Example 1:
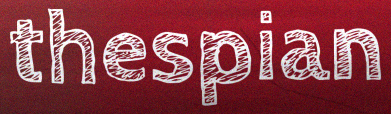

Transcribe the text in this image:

thespian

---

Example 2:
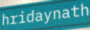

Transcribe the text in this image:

hridaynath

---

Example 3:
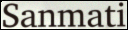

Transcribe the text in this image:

Sanmati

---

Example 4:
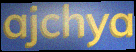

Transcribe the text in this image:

ajchya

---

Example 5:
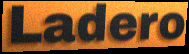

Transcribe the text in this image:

Ladero